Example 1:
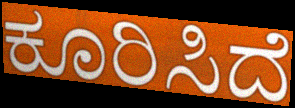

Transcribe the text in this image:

ಕೂರಿಸಿದೆ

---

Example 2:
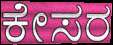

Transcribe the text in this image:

ಕೇಸರ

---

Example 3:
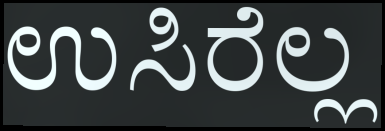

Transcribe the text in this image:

ಉಸಿರೆಲ್ಲ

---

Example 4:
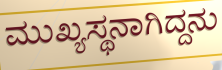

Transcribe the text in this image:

ಮುಖ್ಯಸ್ಥನಾಗಿದ್ದನು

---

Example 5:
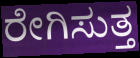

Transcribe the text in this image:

ರೇಗಿಸುತ್ತ